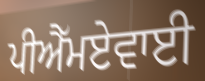
ਪੀਐੱਮਏਵਾਈ